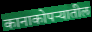
कानाकोपऱ्यातील